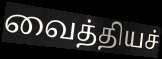
வைத்தியச்